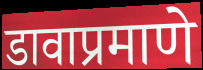
डावाप्रमाणे